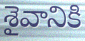
శైవానికి